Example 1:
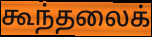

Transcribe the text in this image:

கூந்தலைக்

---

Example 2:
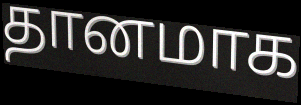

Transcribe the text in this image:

தானமாக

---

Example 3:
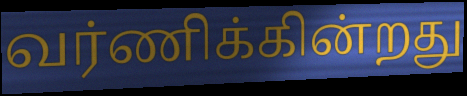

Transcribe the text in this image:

வர்ணிக்கின்றது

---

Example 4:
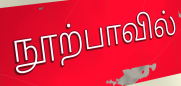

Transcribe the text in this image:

நூற்பாவில்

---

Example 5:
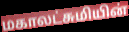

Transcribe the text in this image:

மகாலட்சுமியின்